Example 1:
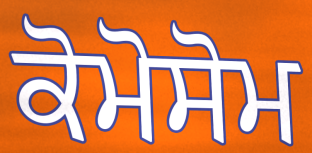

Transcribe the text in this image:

ਕੋਮੋਸੋਮ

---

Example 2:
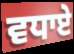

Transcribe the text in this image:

ਵਧਾਏ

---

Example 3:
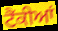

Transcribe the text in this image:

ਟੈਂਕੀਆਂ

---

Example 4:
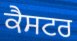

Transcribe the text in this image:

ਕੈਸਟਰ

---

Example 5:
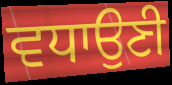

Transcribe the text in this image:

ਵਧਾਉਣੀ